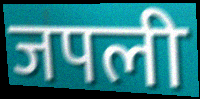
जपली